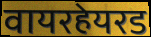
वायरहेयरड